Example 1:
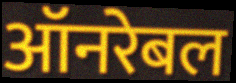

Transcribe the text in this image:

ऑनरेबल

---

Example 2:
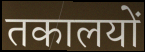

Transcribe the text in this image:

तकालयों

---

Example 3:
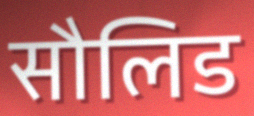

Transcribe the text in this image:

सौलिड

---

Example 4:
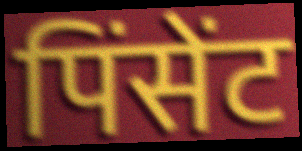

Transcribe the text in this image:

पिंसेंट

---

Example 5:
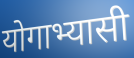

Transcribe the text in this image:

योगाभ्यासी